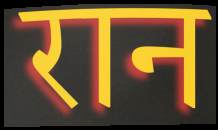
रान